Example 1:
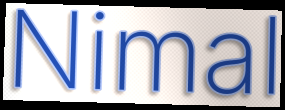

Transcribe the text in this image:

Nimal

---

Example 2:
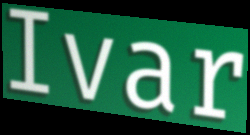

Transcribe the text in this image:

Ivar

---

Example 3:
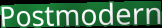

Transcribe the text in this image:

Postmodern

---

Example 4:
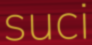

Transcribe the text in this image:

suci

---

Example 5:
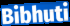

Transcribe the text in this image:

Bibhuti